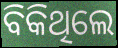
ବିକିଥିଲେ